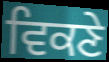
ਵਿਕਣੇ